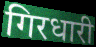
गिरधारी